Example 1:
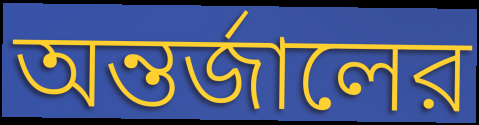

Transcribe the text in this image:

অন্তর্জালের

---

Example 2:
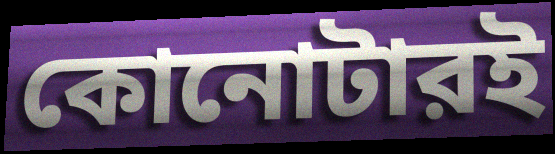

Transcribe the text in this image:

কোনোটারই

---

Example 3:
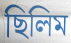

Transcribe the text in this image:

ছিলিম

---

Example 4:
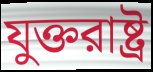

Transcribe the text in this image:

যুক্তরাষ্ট্র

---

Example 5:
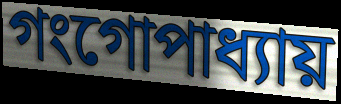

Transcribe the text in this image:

গংগোপাধ্যায়